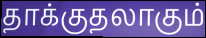
தாக்குதலாகும்